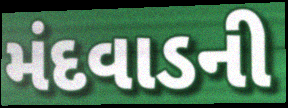
મંદવાડની